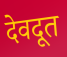
देवदूत